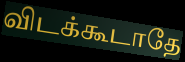
விடக்கூடாதே